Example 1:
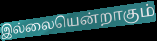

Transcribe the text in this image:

இல்லையென்றாகும்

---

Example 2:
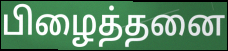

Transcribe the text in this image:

பிழைத்தனை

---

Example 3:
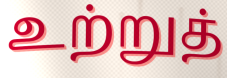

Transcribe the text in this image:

உற்றுத்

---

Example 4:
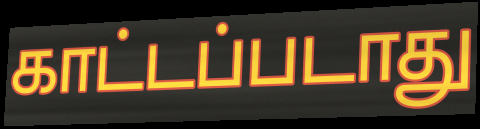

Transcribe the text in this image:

காட்டப்படாது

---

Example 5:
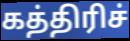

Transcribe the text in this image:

கத்திரிச்